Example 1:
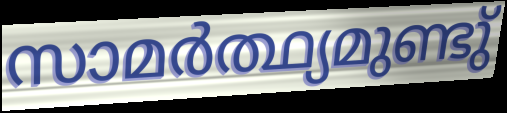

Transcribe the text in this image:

സാമർത്ഥ്യമുണ്ടു്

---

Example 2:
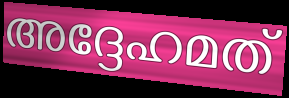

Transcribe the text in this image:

അദ്ദേഹമത്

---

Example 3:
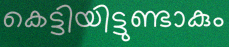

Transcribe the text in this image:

കെട്ടിയിട്ടുണ്ടാകും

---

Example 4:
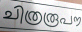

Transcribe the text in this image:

ചിത്രരൂപൗ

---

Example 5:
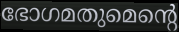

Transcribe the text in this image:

ഭോഗമതുമെന്റെ